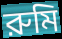
ৰুমি